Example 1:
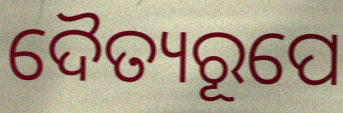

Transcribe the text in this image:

ଦୈତ୍ୟରୂପେ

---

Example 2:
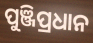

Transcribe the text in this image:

ପୁଞ୍ଜିପ୍ରଧାନ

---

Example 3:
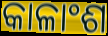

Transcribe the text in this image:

କାଳାଂଶ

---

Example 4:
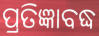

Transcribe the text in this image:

ପ୍ରତିଜ୍ଞାବଦ୍ଧ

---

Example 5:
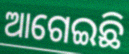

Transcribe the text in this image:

ଆଗେଇଛି